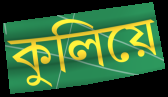
কুলিয়ে